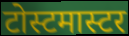
टोस्टमास्टर